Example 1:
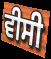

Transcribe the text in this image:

ਵੀਸੀ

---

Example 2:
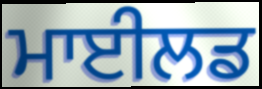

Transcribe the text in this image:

ਮਾਈਲਡ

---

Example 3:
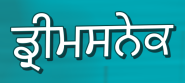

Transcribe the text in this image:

ਡ੍ਰੀਮਸਨੇਕ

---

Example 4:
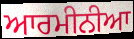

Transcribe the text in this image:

ਆਰਮੀਨੀਆ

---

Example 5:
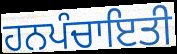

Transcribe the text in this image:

ਹਨਪੰਚਾਇਤੀ